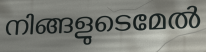
നിങ്ങളുടെമേൽ